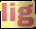
lig